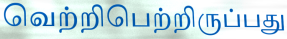
வெற்றிபெற்றிருப்பது